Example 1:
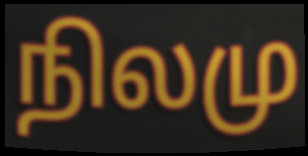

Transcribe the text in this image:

நிலமு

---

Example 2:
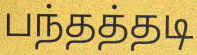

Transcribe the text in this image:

பந்தத்தடி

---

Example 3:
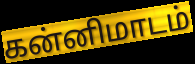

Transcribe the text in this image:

கன்னிமாடம்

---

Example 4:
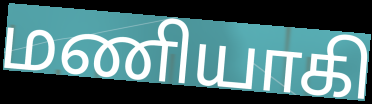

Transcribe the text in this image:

மணியாகி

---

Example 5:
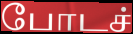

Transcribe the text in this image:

போடச்